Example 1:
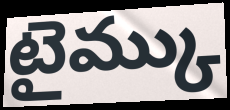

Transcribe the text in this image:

టైమ్కు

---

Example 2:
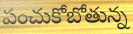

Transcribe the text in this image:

పంచుకోబోతున్న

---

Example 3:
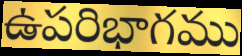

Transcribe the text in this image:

ఉపరిభాగము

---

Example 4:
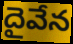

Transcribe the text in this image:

దైవేన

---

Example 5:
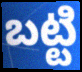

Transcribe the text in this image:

బట్టి